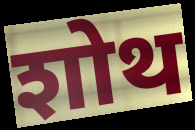
शोथ